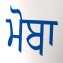
ਮੋਬਾ